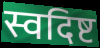
स्वदिष्ट